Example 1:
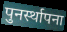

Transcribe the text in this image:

पुनर्स्थापना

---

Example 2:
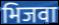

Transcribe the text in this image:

भिजवा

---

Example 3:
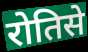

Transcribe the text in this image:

रोतिसे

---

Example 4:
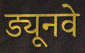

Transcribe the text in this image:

ड्यूनवे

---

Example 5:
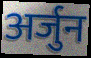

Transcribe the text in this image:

अर्जुन